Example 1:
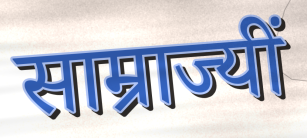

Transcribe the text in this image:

साम्राज्यीं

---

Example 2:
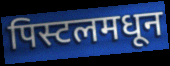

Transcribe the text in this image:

पिस्टलमधून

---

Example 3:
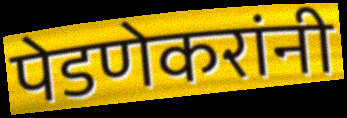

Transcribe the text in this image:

पेडणेकरांनी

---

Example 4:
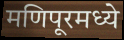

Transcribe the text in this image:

मणिपूरमध्ये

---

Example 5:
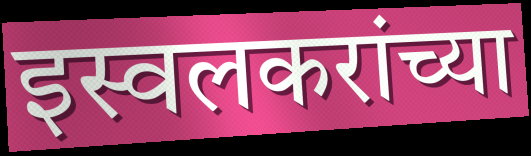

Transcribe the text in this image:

इस्वलकरांच्या